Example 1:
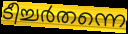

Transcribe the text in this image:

ടീച്ചർതന്നെ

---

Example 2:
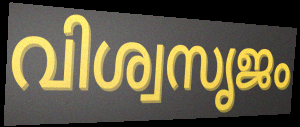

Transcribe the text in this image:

വിശ്വസൃജം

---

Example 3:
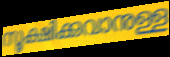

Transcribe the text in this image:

സൂക്ഷിക്കുവാനുള്ള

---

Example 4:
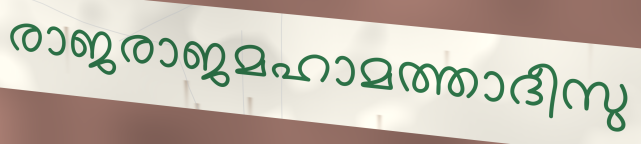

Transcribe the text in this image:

രാജരാജമഹാമത്താദീസു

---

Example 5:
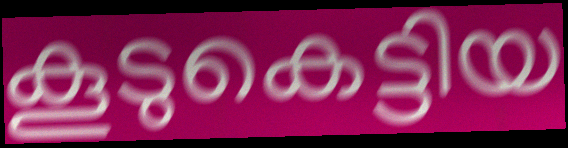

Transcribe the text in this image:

കൂടുകെട്ടിയ